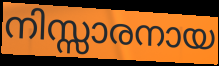
നിസ്സാരനായ